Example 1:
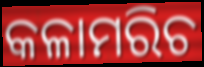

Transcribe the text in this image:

କଳାମରିଚ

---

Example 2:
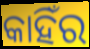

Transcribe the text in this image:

କାହିଁର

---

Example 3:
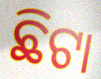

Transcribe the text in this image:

ଛିଟା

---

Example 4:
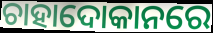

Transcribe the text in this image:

ଚାହାଦୋକାନରେ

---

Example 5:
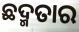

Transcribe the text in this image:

ଛଦ୍ମତାର